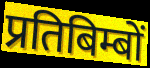
प्रतिबिम्बों